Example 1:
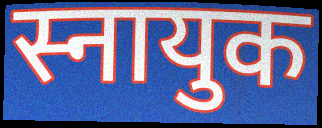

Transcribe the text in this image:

स्नायुक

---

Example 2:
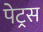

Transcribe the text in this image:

पेट्रस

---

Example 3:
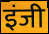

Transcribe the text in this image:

इंजी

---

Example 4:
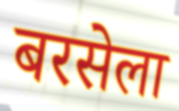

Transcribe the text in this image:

बरसेला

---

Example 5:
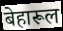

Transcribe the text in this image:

बेहारूल